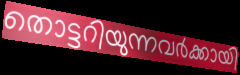
തൊട്ടറിയുന്നവർക്കായി